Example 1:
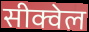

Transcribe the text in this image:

सीक्वेल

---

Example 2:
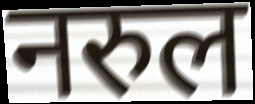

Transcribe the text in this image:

नरुल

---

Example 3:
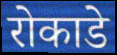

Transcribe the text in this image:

रोकाडे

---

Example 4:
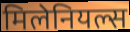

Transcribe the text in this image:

मिलेनियल्स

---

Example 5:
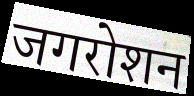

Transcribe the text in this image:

जगरोशन